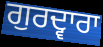
ਗੁਰਦ੍ਵਾਰਾ